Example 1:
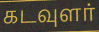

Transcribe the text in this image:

கடவுளர்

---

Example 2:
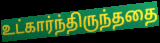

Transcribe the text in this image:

உட்கார்ந்திருந்ததை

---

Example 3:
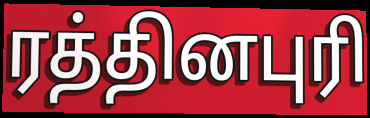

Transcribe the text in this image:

ரத்தினபுரி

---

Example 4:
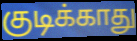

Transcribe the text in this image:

குடிக்காது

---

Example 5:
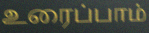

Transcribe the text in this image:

உரைப்பாம்